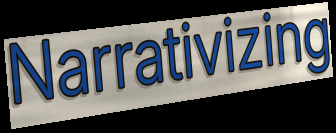
Narrativizing